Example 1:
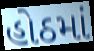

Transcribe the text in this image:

હોઠમાં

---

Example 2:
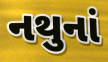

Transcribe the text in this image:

નથુનાં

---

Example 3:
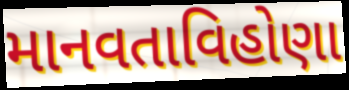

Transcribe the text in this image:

માનવતાવિહોણા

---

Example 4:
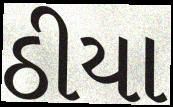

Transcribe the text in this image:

ઠીયા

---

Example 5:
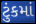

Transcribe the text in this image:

ટુંકમાં